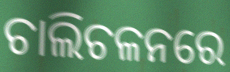
ଚାଲିଚଳନରେ